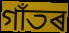
গাঁতৰ